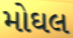
મોઘલ